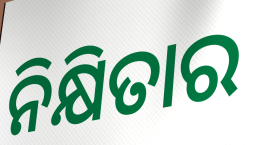
ନିକ୍ଷିତାର